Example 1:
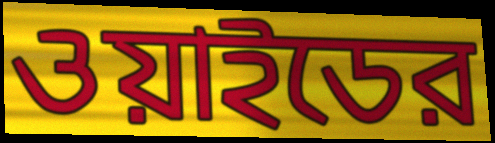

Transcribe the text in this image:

ওয়াইডের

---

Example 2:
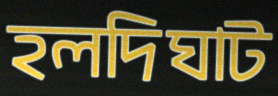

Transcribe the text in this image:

হলদিঘাট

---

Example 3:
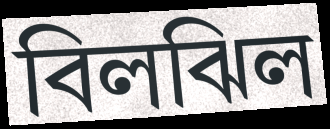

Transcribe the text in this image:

বিলঝিল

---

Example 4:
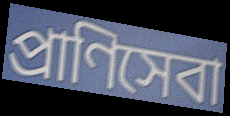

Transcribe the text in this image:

প্রাণিসেবা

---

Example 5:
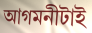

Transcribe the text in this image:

আগমনীটাই